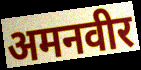
अमनवीर